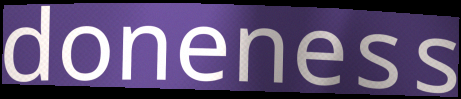
doneness